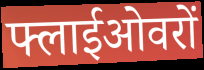
फ्लाईओवरों